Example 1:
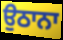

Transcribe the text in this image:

ਉਠਾਨਾ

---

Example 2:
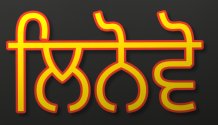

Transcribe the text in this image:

ਲਿਨੋਵੋ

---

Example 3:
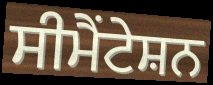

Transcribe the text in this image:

ਸੀਮੈਂਟੇਸ਼ਨ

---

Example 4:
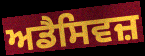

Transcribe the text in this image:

ਅਡੈਸਿਵਜ਼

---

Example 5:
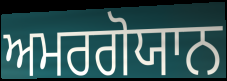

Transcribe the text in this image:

ਅਮਰਗੋਯਾਨ